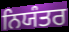
ਨਿਯੰਤਰ